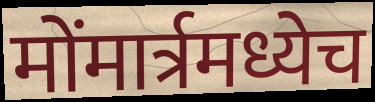
मोंमार्त्रमध्येच